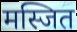
मस्जित